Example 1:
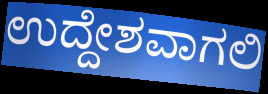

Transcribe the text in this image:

ಉದ್ದೇಶವಾಗಲಿ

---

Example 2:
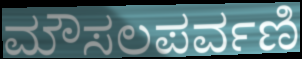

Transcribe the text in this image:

ಮೌಸಲಪರ್ವಣಿ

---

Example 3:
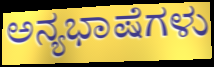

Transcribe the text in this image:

ಅನ್ಯಭಾಷೆಗಳು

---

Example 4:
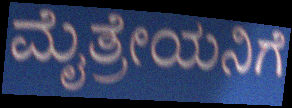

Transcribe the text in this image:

ಮೈತ್ರೇಯನಿಗೆ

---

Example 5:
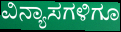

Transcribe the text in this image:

ವಿನ್ಯಾಸಗಳಿಗೂ